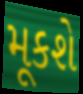
મૂકશે